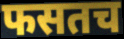
फसतच